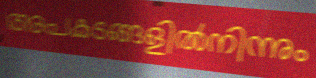
അപകടങ്ങളിൽനിന്നും